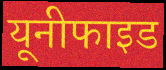
यूनीफाइड